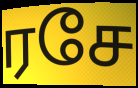
ரசே